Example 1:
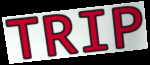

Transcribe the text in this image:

TRIP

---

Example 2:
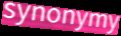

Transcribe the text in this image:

synonymy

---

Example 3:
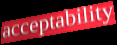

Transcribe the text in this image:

acceptability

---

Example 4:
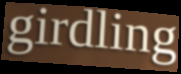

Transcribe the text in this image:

girdling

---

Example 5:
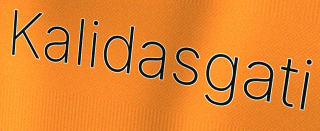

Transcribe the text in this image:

Kalidasgati